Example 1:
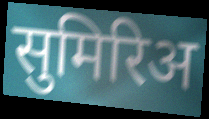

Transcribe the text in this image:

सुमिरिअ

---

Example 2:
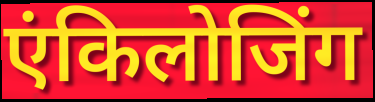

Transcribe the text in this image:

एंकिलोजिंग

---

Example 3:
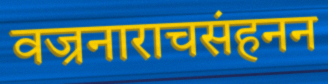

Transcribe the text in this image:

वज्रनाराचसंहनन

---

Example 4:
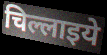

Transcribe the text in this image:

चिल्लाइये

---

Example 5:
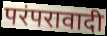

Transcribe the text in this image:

परंपरावादी